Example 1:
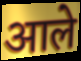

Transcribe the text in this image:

आले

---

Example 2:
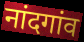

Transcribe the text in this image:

नांदगांव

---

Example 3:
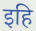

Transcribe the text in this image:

इहि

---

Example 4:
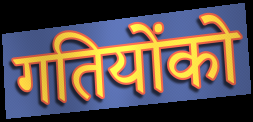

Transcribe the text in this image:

गतियोंको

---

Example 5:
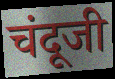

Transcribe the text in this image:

चंदूजी